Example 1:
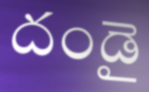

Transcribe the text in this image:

దండై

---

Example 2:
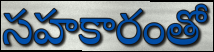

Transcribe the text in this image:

సహకారంతో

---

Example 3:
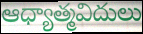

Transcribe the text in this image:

ఆధ్యాత్మవిదులు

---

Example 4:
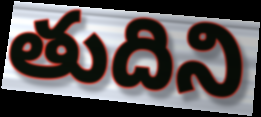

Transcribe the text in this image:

తుదిని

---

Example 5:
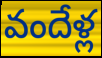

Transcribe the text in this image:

వందేళ్ల